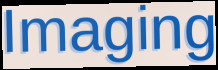
Imaging